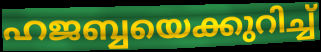
ഹജബ്ബയെക്കുറിച്ച്